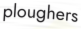
ploughers